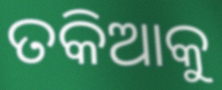
ତକିଆକୁ